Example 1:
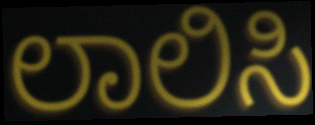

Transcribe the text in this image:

ಲಾಲಿಸಿ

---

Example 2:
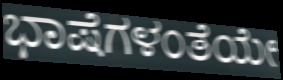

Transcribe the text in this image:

ಭಾಷೆಗಳಂತೆಯೇ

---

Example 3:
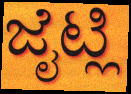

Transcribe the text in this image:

ಜೈಟ್ಲಿ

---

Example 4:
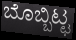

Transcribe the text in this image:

ಬೊಬ್ಬಿಟ್ಟ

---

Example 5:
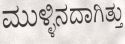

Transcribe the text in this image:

ಮುಳ್ಳಿನದಾಗಿತ್ತು